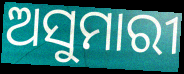
ଅସୁମାରୀ